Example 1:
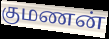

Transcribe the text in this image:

குமணன்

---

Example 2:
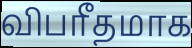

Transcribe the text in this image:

விபரீதமாக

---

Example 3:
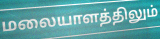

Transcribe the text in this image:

மலையாளத்திலும்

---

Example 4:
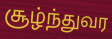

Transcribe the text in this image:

சூழ்ந்துவர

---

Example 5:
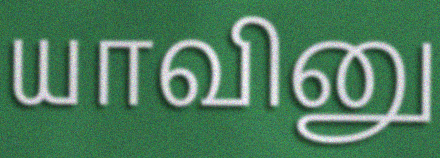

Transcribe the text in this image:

யாவினு